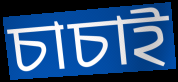
চাচাই